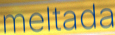
meltada